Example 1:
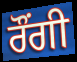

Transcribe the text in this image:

ਰੌਂਗੀ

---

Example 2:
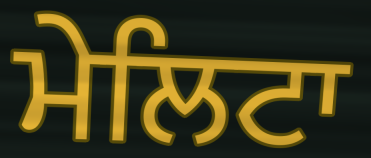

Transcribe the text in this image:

ਮੇਲਿਟਾ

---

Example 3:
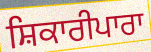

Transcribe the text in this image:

ਸ਼ਿਕਾਰੀਪਾਰਾ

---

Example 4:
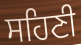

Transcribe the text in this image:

ਸਹਿਣੀ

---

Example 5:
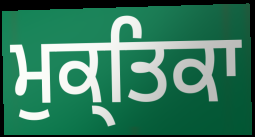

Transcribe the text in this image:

ਮੁਕ੍ਤਿਕਾ